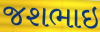
જશભાઇ